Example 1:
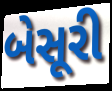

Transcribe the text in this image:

બેસૂરી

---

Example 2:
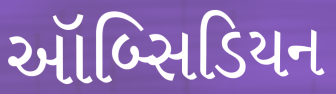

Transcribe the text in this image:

ઑબ્સિડિયન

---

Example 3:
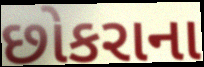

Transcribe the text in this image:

છોકરાના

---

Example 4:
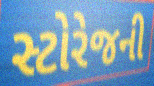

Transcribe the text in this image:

સ્ટોરેજની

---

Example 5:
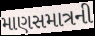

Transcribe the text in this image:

માણસમાત્રની